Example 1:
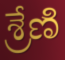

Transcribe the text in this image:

శ్రేణి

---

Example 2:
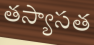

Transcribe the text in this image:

తస్యాసత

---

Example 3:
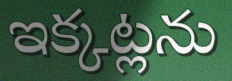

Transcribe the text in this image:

ఇక్కట్లను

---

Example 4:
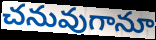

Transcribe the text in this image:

చనువుగానూ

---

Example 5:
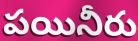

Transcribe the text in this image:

పయినీరు